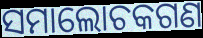
ସମାଲୋଚକଗଣ